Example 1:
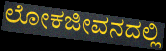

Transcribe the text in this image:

ಲೋಕಜೀವನದಲ್ಲಿ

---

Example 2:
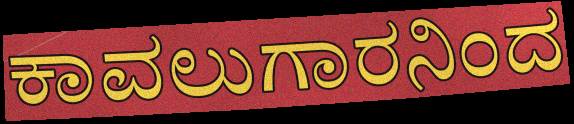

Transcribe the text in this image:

ಕಾವಲುಗಾರನಿಂದ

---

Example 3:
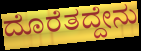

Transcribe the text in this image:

ದೊರೆತದ್ದೇನು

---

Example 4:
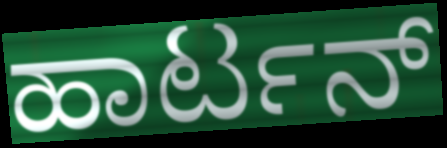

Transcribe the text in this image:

ಹಾರ್ಟನ್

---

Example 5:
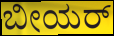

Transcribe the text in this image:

ಬೀಯರ್